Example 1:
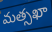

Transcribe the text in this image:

మత్సఖా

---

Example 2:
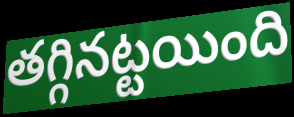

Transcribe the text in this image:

తగ్గినట్టయింది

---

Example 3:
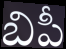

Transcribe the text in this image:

బిపీ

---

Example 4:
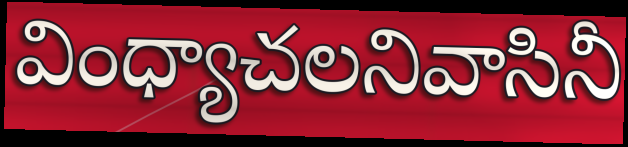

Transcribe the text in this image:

వింధ్యాచలనివాసినీ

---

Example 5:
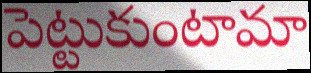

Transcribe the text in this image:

పెట్టుకుంటామా